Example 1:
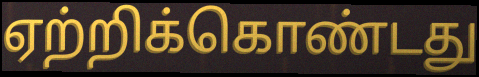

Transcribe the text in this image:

ஏற்றிக்கொண்டது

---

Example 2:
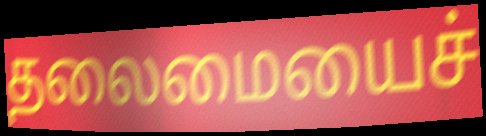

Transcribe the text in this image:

தலைமையைச்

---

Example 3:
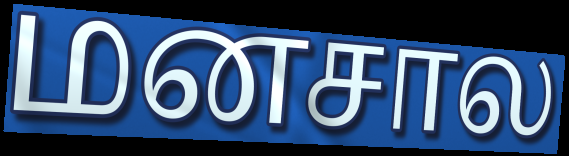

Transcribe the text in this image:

மனசால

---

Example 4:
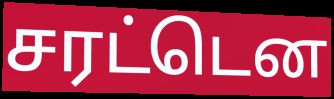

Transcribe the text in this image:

சரட்டென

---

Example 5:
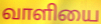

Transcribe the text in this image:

வாளியை